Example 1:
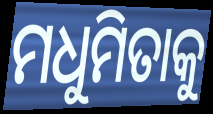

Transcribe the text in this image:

ମଧୁମିତାକୁ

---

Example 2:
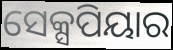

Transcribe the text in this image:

ସେକ୍ସପିୟାର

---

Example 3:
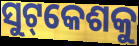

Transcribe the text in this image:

ସୁଟ୍‌କେଶକୁ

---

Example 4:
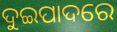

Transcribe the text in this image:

ଦୁଇପାଦରେ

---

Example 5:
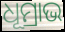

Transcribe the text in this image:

ଧୂମ୍ରାଭ